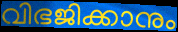
വിഭജിക്കാനും